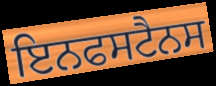
ਇਨਫਸਟੈਨਸ